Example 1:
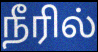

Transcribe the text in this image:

நீரில்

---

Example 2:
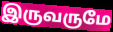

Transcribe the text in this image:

இருவருமே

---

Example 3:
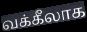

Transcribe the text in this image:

வக்கீலாக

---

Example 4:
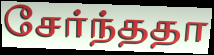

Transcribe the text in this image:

சேர்ந்ததா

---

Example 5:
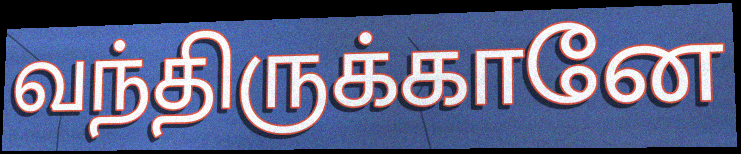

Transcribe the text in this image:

வந்திருக்கானே